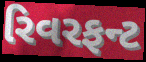
રિવરફન્ટ